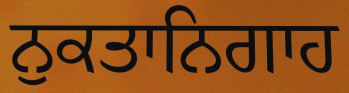
ਨੁਕਤਾਨਿਗਾਹ